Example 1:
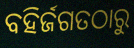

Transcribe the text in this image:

ବହିର୍ଜଗତଠାରୁ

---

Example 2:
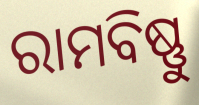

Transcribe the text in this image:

ରାମବିଷ୍ଣୁ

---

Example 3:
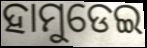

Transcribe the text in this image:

ହାମୁଡେଇ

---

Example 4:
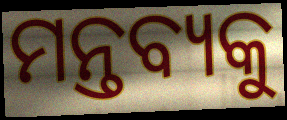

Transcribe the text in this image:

ମନ୍ତବ୍ୟକୁ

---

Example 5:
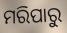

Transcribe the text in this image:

ମରିପାରୁ